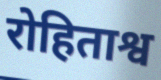
रोहिताश्व